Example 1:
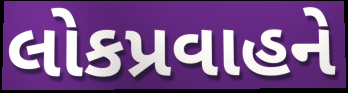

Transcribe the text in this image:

લોકપ્રવાહને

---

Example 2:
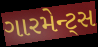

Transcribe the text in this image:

ગારમેન્ટ્સ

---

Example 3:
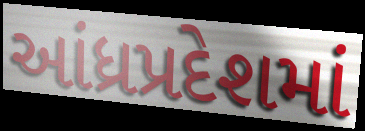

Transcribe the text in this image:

આંધ્રપ્રદેશમાં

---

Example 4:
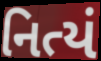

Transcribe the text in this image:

નિત્યં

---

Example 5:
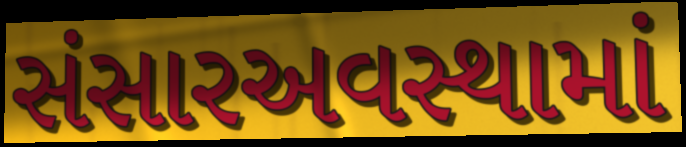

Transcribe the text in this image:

સંસારઅવસ્થામાં